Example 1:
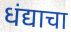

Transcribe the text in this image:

धंद्याचा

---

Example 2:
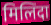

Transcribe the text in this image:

मिलिंदा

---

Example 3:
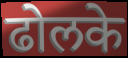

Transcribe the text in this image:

ढोलके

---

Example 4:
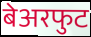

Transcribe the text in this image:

बेअरफुट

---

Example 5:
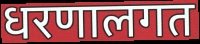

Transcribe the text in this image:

धरणालगत